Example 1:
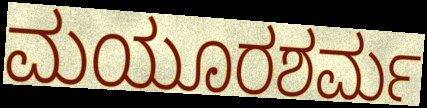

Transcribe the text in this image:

ಮಯೂರಶರ್ಮ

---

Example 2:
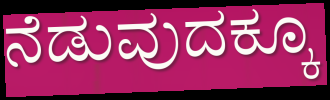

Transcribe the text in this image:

ನೆಡುವುದಕ್ಕೂ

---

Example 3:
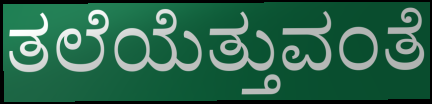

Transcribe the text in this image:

ತಲೆಯೆತ್ತುವಂತೆ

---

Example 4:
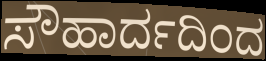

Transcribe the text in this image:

ಸೌಹಾರ್ದದಿಂದ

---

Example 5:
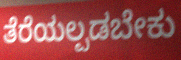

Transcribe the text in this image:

ತೆರೆಯಲ್ಪಡಬೇಕು